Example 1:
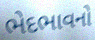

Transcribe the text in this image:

ભેદભાવનો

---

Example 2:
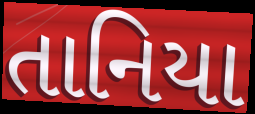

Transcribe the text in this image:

તાનિયા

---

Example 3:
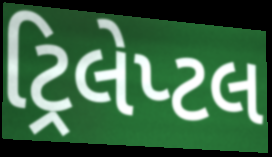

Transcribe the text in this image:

ટ્રિલેપ્ટલ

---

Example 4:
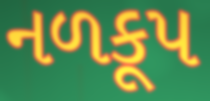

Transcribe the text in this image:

નળકૂપ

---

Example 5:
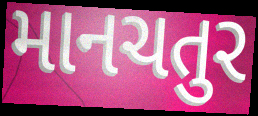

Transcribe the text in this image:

માનચતુર